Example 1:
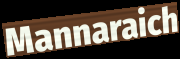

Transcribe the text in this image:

Mannaraich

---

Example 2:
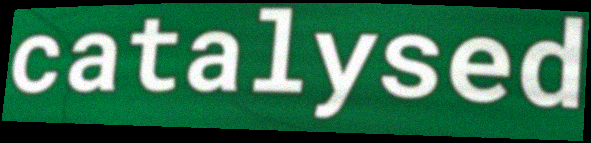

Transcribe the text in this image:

catalysed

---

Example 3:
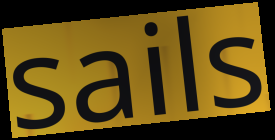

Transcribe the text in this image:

sails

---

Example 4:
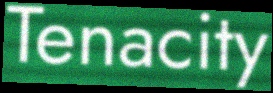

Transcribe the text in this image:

Tenacity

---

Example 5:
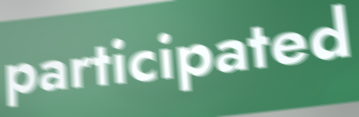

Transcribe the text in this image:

participated